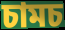
চামচ